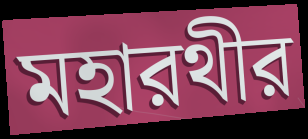
মহারথীর